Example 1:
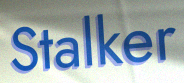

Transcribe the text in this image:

Stalker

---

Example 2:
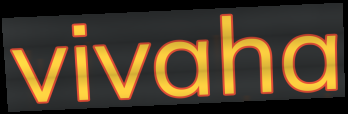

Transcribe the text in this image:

vivaha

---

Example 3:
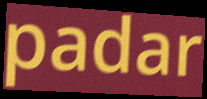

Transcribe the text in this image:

padar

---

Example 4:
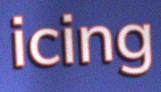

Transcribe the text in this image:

icing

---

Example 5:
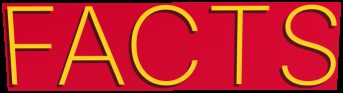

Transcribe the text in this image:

FACTS